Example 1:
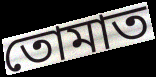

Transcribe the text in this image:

তোমাত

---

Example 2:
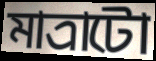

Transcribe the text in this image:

মাত্ৰাটো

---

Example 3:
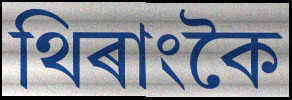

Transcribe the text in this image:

থিৰাংকৈ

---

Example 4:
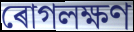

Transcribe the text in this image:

ৰোগলক্ষণ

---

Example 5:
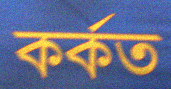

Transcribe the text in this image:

কৰ্কত